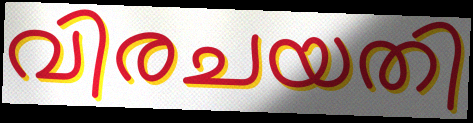
വിരചയതി